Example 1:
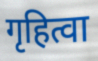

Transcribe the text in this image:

गृहित्वा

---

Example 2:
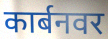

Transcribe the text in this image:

कार्बनवर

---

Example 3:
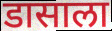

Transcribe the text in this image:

डासाला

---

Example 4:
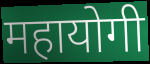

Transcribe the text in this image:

महायोगी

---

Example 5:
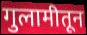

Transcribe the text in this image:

गुलामीतून